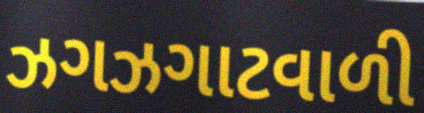
ઝગઝગાટવાળી